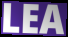
LEA